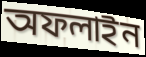
অফলাইন